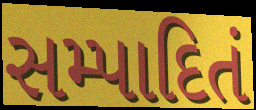
સમ્પાદિતં